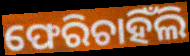
ଫେରିଚାହିଁଲି